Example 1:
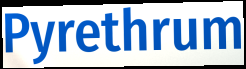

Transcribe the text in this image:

Pyrethrum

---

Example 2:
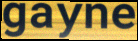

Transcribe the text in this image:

gayne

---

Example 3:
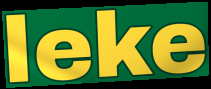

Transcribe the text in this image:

leke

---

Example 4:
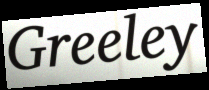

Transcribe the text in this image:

Greeley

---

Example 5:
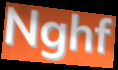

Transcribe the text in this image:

Nghf